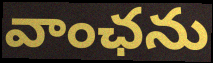
వాంఛను